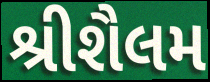
શ્રીશૈલમ